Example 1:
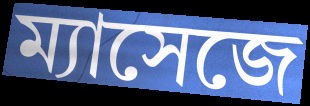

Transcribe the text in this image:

ম্যাসেজে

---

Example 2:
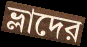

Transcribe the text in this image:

ভ্লাদের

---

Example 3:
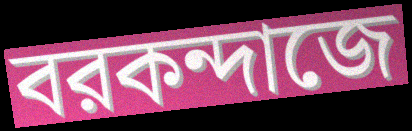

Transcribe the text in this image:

বরকন্দাজে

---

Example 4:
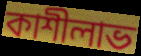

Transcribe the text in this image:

কাশীলাভ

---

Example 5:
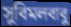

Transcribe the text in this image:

সুবিমলবাবু